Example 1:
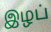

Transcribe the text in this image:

இழப்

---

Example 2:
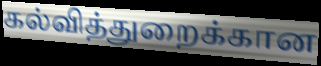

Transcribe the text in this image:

கல்வித்துறைக்கான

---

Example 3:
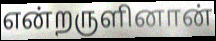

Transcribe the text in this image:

என்றருளினான்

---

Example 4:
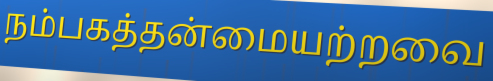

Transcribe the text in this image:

நம்பகத்தன்மையற்றவை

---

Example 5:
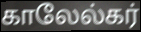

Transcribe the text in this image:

காலேல்கர்